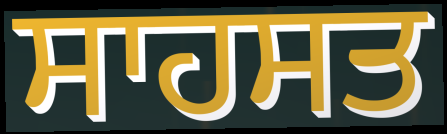
ਸਾਹਸਤ